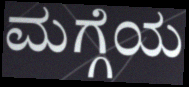
ಮಗ್ಗೆಯ